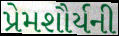
પ્રેમશૌર્યની